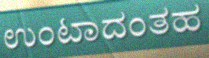
ಉಂಟಾದಂತಹ